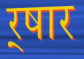
र्षार